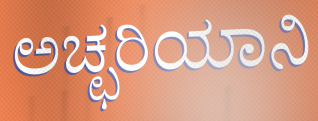
ಅಚ್ಛರಿಯಾನಿ